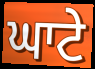
ਘਾਟੇ